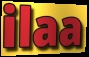
ilaa